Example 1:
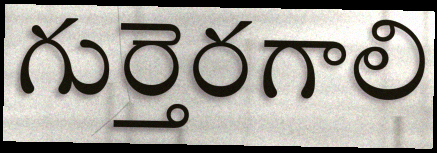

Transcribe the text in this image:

గుర్తెరగాలి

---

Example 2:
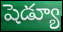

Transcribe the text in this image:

షెడ్యూ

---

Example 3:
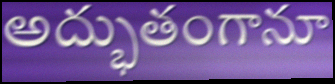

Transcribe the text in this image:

అద్భుతంగానూ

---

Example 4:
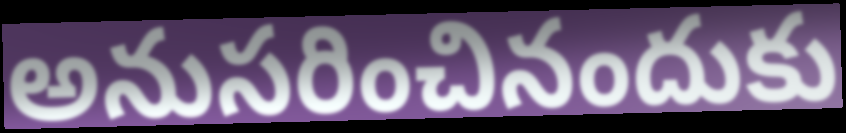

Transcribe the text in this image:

అనుసరించినందుకు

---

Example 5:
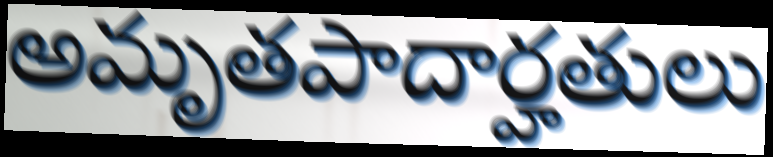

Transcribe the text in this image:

అమృతపాదార్హతులు